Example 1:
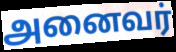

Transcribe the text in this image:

அனைவர்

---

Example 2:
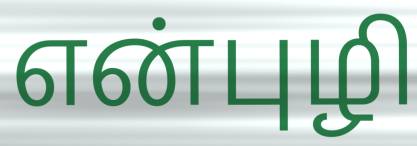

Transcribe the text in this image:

என்புழி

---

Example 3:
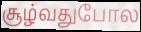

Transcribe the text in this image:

சூழ்வதுபோல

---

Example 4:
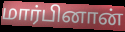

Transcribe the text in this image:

மார்பினான்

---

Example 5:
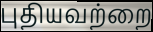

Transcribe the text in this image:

புதியவற்றை